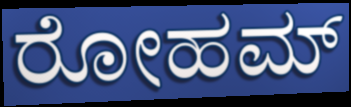
ರೋಹಮ್